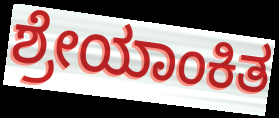
ಶ್ರೇಯಾಂಕಿತ